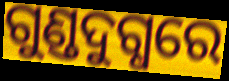
ଗୁଣ୍ଡଦୁଗ୍ଧରେ